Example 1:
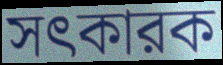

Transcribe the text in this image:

সৎকারক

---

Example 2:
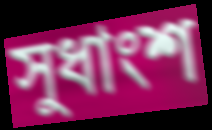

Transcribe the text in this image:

সুধাংশ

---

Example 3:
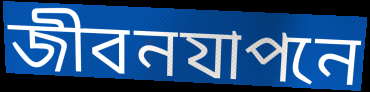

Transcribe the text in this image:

জীবনযাপনে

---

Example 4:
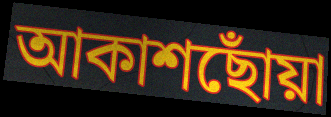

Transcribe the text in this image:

আকাশছোঁয়া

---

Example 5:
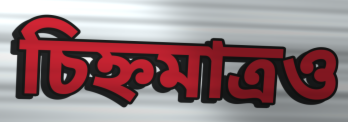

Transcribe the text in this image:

চিহ্নমাত্রও